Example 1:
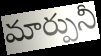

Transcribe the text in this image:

మార్పునీ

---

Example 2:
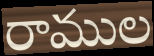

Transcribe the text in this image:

రాముల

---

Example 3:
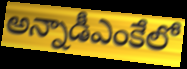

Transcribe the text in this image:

అన్నాడీఎంకేలో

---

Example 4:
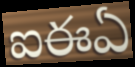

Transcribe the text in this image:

ఐఈఏ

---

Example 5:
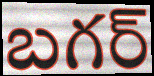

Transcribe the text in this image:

బగర్